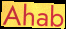
Ahab